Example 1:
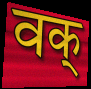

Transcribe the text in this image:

वक्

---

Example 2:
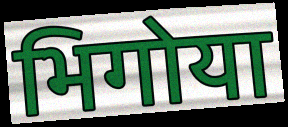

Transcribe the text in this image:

भिगोया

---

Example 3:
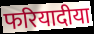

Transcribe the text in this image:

फरियादीया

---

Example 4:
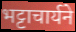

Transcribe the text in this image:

भट्टाचार्यने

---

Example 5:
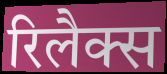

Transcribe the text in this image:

रिलैक्‍स